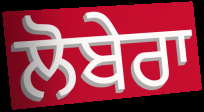
ਲੋਬੇਰਾ